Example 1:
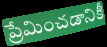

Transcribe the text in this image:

ప్రేమించడానికీ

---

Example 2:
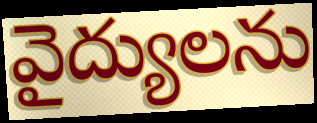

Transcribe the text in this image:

వైద్యులను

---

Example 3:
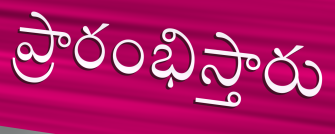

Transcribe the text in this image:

ప్రారంభిస్తారు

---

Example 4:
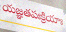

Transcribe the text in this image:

యజ్ఞతపఃక్రియాః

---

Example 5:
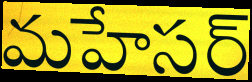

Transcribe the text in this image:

మహేసర్